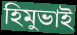
হিমুভাই